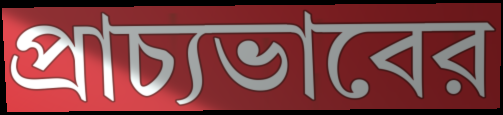
প্রাচ্যভাবের